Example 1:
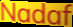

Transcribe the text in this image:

Nadaf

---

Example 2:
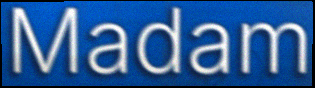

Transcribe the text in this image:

Madam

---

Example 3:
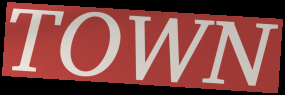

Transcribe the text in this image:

TOWN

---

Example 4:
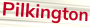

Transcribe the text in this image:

Pilkington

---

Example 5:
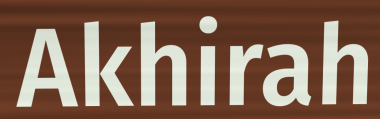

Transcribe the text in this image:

Akhirah